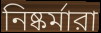
নিষ্কর্মারা